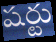
షర్టు